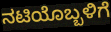
ನಟಿಯೊಬ್ಬಳಿಗೆ